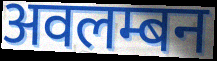
अवलम्बन